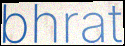
bhrat